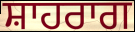
ਸ਼ਾਹਰਾਗ